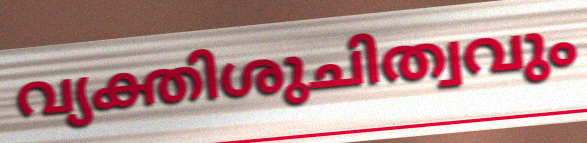
വ്യക്തിശുചിത്വവും